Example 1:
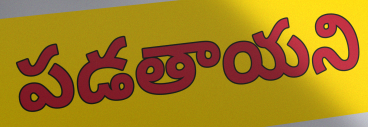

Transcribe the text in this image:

పడతాయని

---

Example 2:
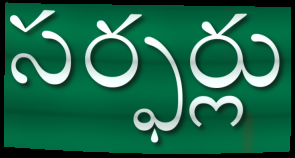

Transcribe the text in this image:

సర్ఫర్లు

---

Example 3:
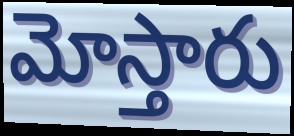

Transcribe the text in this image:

మోస్తారు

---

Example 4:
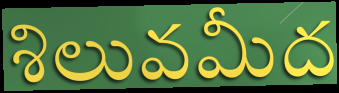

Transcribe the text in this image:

శిలువమీద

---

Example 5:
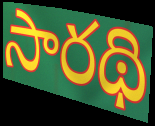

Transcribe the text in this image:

సారథి